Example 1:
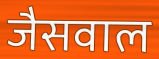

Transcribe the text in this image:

जैसवाल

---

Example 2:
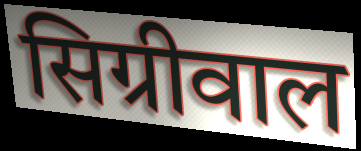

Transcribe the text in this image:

सिग्रीवाल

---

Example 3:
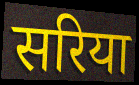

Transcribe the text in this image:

सरिया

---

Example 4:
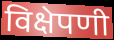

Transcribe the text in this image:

विक्षेपणी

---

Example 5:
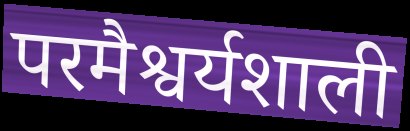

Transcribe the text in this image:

परमैश्वर्यशाली